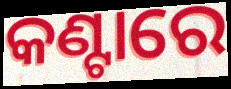
କଣ୍ଟାରେ